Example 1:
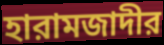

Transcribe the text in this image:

হারামজাদীর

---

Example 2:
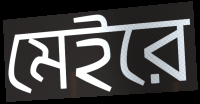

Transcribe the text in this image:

মেইরে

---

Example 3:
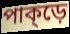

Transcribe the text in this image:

পাক্ড়ে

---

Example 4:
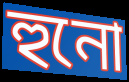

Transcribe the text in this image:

হুনো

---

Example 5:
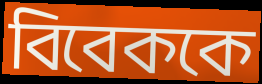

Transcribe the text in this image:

বিবেককে